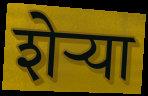
शेऱ्या